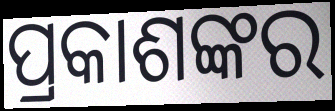
ପ୍ରକାଶଙ୍କର